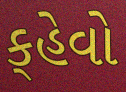
ક્‌હેવો